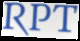
RPT